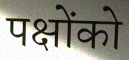
पक्षोंको